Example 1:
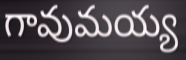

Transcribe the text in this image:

గావుమయ్య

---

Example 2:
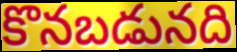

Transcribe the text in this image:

కొనబడునది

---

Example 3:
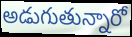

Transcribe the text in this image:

అడుగుతున్నారో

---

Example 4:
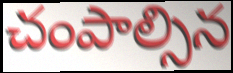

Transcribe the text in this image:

చంపాల్సిన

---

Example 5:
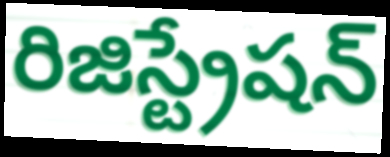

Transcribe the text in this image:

రిజిస్ట్రేషన్